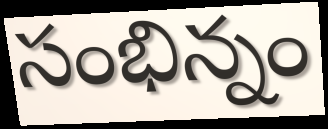
సంభిన్నం